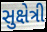
સુક્ષેત્રી